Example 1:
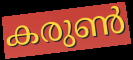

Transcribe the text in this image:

കരുൺ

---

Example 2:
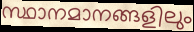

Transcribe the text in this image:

സ്ഥാനമാനങ്ങളിലും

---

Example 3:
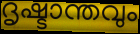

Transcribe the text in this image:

ദൃഷ്ടാന്തവും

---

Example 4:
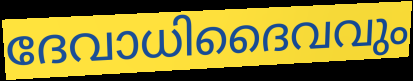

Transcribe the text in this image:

ദേവാധിദൈവവും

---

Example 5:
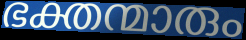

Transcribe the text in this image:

ഭക്തന്മാരും